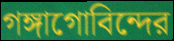
গঙ্গাগোবিন্দের